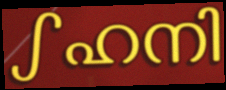
ഽഹനി